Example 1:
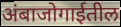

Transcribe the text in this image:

अंबाजोगाईतील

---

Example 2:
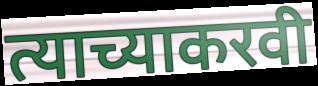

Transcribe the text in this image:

त्याच्याकरवी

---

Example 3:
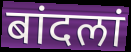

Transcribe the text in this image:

बांदलां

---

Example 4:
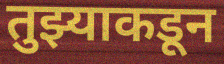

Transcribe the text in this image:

तुझ्याकडून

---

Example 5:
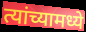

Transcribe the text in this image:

त्यांच्यामध्ये